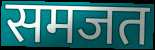
समजत